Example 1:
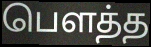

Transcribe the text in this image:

பெளத்த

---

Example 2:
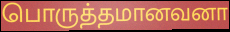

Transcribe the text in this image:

பொருத்தமானவனா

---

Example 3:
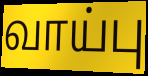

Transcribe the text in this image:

வாய்பு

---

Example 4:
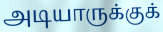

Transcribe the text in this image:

அடியாருக்குக்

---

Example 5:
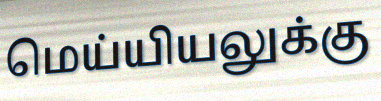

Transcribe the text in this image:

மெய்யியலுக்கு